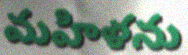
మహిళను